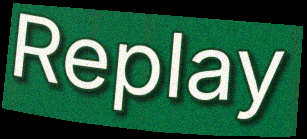
Replay